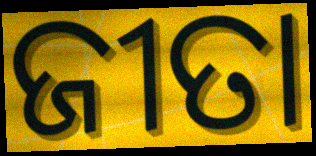
ଜୀତା